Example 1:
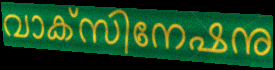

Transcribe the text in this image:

വാക്‌സിനേഷനു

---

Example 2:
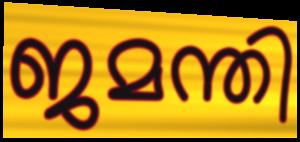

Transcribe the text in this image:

ജമന്തി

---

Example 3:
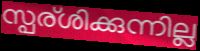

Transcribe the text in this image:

സ്പര്ശിക്കുന്നില്ല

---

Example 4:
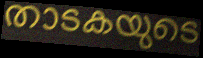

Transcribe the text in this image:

താടകയുടെ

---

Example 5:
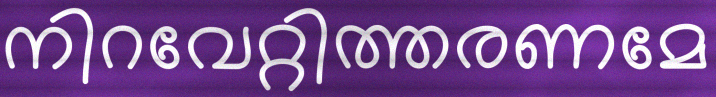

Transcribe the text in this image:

നിറവേറ്റിത്തരണമേ